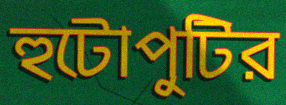
হুটোপুটির